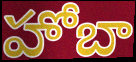
హోబా